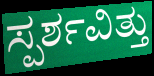
ಸ್ಪರ್ಶವಿತ್ತು